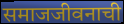
समाजजीवनाची